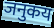
जनुकय